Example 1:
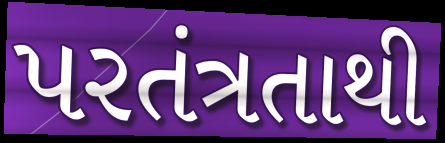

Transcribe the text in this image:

પરતંત્રતાથી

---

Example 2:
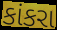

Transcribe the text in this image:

કાંકરા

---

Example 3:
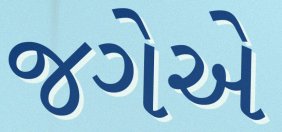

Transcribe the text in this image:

જગેએ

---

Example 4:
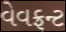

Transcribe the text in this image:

વેવફ્રન્ટ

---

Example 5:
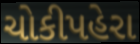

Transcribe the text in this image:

ચોકીપહેરા